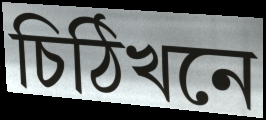
চিঠিখনে